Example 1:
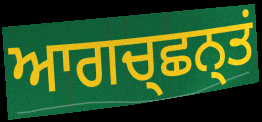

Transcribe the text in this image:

ਆਗਚ੍ਛਨ੍ਤਂ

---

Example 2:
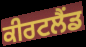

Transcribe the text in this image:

ਕੀਰਟਲੈਂਡ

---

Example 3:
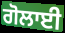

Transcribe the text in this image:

ਗੋਲਾਈ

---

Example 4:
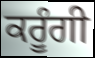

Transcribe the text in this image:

ਕਰੂੰਗੀ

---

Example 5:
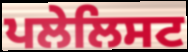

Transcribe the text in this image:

ਪਲੇਲਿਸਟ